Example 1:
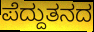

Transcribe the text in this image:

ಪೆದ್ದುತನದ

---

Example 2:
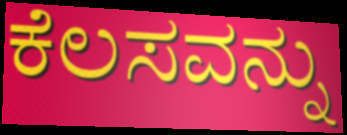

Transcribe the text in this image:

ಕೆಲಸವನ್ನು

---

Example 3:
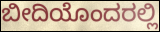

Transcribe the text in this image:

ಬೀದಿಯೊಂದರಲ್ಲಿ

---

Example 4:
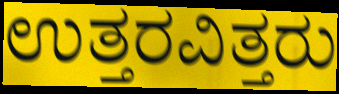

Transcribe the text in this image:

ಉತ್ತರವಿತ್ತರು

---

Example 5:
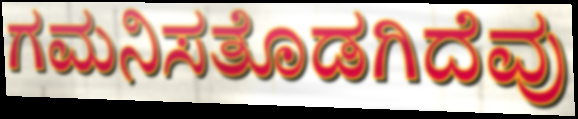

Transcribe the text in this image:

ಗಮನಿಸತೊಡಗಿದೆವು